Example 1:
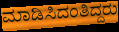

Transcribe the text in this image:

ಮಾಡಿಸಿದಂತಿದ್ದರು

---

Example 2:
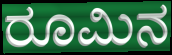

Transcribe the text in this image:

ರೂಮಿನ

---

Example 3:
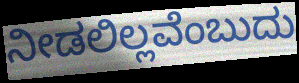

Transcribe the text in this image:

ನೀಡಲಿಲ್ಲವೆಂಬುದು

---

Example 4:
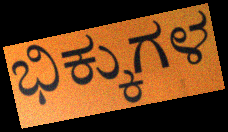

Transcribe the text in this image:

ಭಿಕ್ಕುಗಳ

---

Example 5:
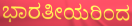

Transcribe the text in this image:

ಭಾರತೀಯರಿಂದ